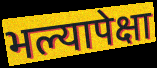
भल्यापेक्षा